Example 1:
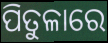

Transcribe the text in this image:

ପିତୁଳାରେ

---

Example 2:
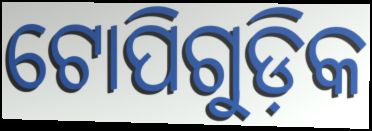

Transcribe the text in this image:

ଟୋପିଗୁଡ଼ିକ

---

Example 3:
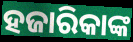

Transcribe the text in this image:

ହଜାରିକାଙ୍କ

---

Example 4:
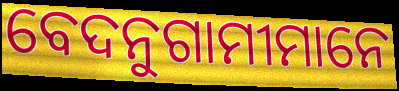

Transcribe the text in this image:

ବେଦନୁଗାମୀମାନେ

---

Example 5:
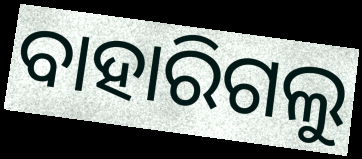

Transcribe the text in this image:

ବାହାରିଗଲୁ